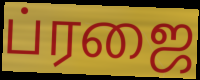
ப்ரஜை